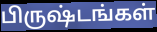
பிருஷ்டங்கள்